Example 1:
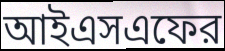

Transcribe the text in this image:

আইএসএফের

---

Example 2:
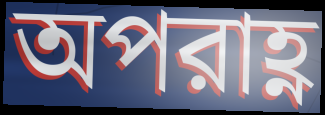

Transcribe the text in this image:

অপরাহ্ণ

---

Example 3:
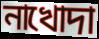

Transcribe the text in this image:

নাখোদা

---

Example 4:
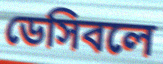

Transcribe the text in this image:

ডেসিবলে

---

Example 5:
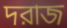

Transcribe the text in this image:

দরাজ